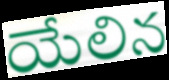
యేలిన